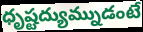
ధృష్టద్యుమ్నుడంటే